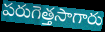
పరుగెత్తసాగారు